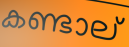
കണ്ടാല്